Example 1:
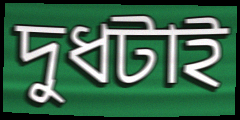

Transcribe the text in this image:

দুধটাই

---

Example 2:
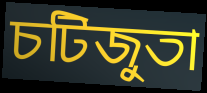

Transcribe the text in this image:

চটিজুতা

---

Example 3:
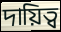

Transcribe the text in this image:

দায়িত্ব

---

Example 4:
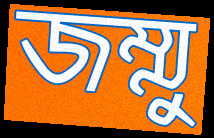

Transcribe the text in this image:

জম্মু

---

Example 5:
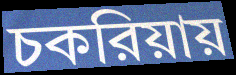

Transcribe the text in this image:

চকরিয়ায়